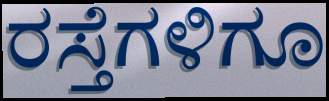
ರಸ್ತೆಗಳಿಗೂ